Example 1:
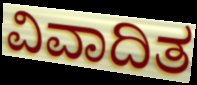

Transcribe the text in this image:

ವಿವಾದಿತ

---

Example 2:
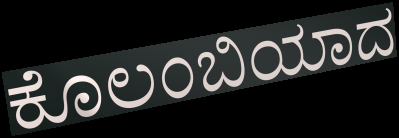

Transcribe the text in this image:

ಕೊಲಂಬಿಯಾದ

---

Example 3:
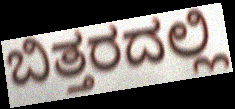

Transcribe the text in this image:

ಬಿತ್ತರದಲ್ಲಿ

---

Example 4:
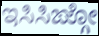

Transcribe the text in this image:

ಇಸಿಸಿಙ್ಗೋ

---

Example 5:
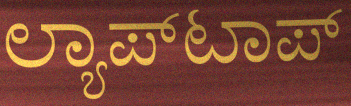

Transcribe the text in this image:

ಲ್ಯಾಪ್‌ಟಾಪ್